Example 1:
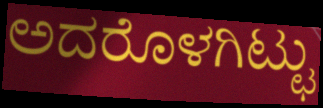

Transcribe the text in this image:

ಅದರೊಳಗಿಟ್ಟು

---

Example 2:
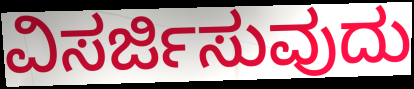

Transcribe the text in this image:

ವಿಸರ್ಜಿಸುವುದು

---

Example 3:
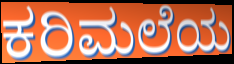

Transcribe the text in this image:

ಕರಿಮಲೆಯ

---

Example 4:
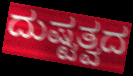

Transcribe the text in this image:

ದುಷ್ಟತ್ವದ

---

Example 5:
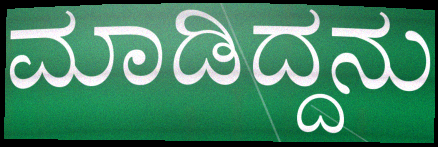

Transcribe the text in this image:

ಮಾಡಿದ್ದನು